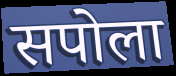
सपोला